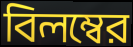
বিলম্বের